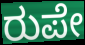
ರುಪೇ